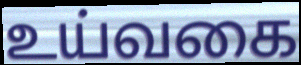
உய்வகை